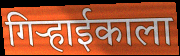
गिऱ्हाईकाला